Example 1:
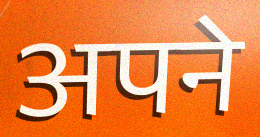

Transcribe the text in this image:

अपने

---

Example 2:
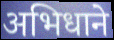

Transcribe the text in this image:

अभिधाने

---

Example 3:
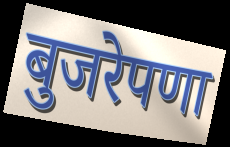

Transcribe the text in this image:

बुजरेपणा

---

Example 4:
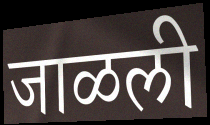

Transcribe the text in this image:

जाळली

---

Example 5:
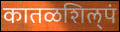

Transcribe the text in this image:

कातळशिल्पं